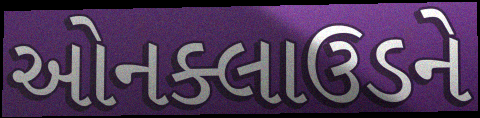
ઓનક્લાઉડને